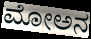
ಮೋಅನ